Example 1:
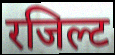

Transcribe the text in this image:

रजिल्ट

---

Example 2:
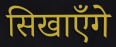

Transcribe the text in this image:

सिखाएँगे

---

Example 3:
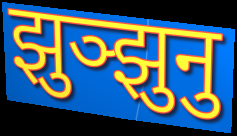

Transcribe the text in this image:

झुञ्झुनु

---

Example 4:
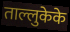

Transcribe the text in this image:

ताल्लुकेके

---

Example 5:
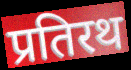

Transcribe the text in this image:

प्रतिरथ